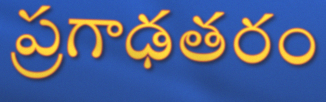
ప్రగాఢతరం